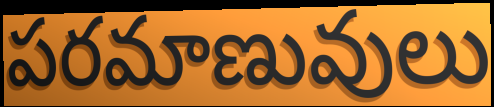
పరమాణువులు